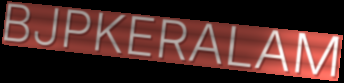
BJPKERALAM